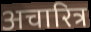
अचारित्र